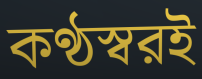
কণ্ঠস্বরই